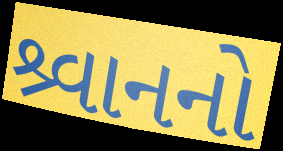
શ્ર્વાનનો